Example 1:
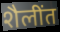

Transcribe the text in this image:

शैलींत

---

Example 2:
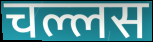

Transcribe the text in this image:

चल्लस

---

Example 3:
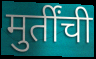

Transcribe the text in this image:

मुर्तींची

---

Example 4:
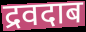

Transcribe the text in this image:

द्रवदाब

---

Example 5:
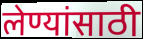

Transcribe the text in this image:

लेण्यांसाठी